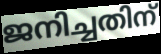
ജനിച്ചതിന്